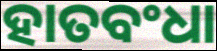
ହାତବଂଧା